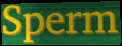
Sperm